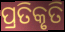
ପ୍ରତିକୃତି